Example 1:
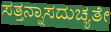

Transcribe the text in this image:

ಸತ್ತನ್ನಾಸದುಚ್ಯತೇ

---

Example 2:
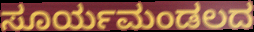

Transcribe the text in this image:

ಸೂರ್ಯಮಂಡಲದ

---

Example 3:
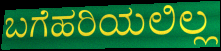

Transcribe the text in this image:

ಬಗೆಹರಿಯಲಿಲ್ಲ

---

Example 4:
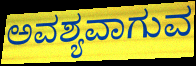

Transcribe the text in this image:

ಅವಶ್ಯವಾಗುವ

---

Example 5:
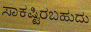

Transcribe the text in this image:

ಸಾಕಷ್ಟಿರಬಹುದು